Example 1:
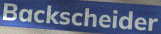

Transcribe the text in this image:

Backscheider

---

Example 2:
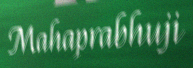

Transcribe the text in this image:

Mahaprabhuji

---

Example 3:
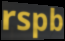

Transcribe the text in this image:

rspb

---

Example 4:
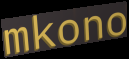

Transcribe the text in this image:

mkono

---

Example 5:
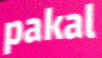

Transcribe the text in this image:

pakal